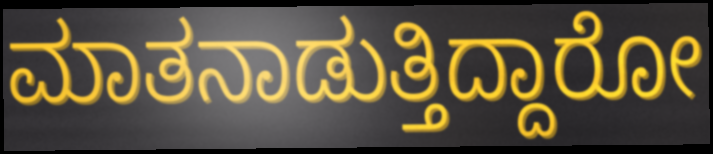
ಮಾತನಾಡುತ್ತಿದ್ದಾರೋ